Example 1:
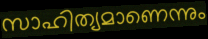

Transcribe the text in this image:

സാഹിത്യമാണെന്നും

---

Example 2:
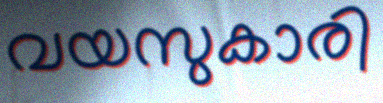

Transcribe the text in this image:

വയസുകാരി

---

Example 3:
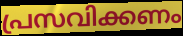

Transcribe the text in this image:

പ്രസവിക്കണം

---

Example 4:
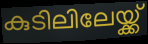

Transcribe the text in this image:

കുടിലിലേയ്ക്ക്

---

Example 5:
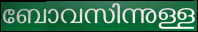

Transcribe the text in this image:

ബോവസിന്നുള്ള